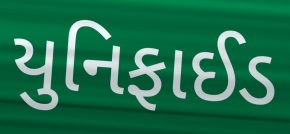
યુનિફાઈડ